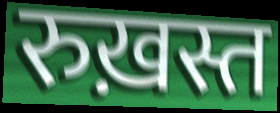
रुख़स्त